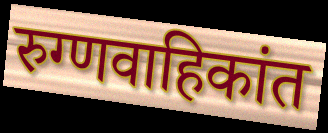
रुग्णवाहिकांत